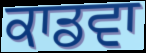
ਕਾਡਵਾ